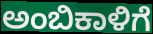
ಅಂಬಿಕಾಳಿಗೆ